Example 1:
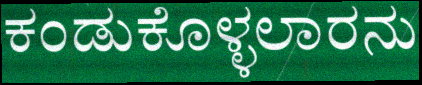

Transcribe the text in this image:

ಕಂಡುಕೊಳ್ಳಲಾರನು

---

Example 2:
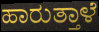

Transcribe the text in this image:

ಹಾರುತ್ತಾಳೆ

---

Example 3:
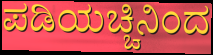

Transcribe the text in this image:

ಪಡಿಯಚ್ಚಿನಿಂದ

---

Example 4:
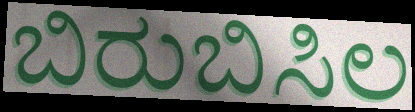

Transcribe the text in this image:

ಬಿರುಬಿಸಿಲ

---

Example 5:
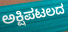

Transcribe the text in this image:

ಅಕ್ಷಿಪಟಲದ